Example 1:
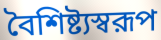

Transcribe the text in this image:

বৈশিষ্ট্যস্বরূপ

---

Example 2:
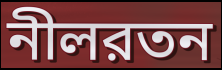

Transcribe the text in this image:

নীলরতন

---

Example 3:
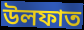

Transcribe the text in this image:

উলফাত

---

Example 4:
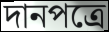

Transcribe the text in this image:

দানপত্রে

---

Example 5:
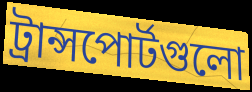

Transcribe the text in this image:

ট্রান্সপোর্টগুলো